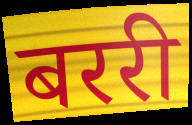
बररी